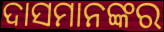
ଦାସମାନଙ୍କର